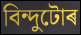
বিন্দুটোৰ